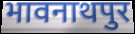
भावनाथपुर